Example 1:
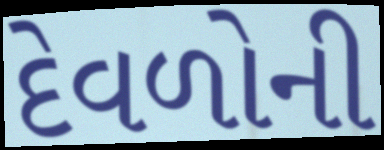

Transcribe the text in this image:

દેવળોની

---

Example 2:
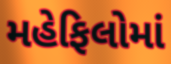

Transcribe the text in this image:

મહેફિલોમાં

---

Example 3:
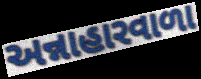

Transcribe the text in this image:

અન્નાહારવાળા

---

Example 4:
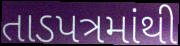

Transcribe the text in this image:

તાડપત્રમાંથી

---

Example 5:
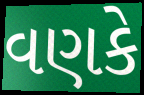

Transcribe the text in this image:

વણકે